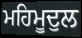
ਮਹਿਮੂਦੁਲ